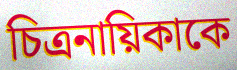
চিত্রনায়িকাকে